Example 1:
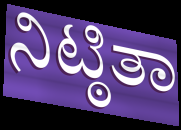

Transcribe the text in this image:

ನಿಟ್ಠಿತಾ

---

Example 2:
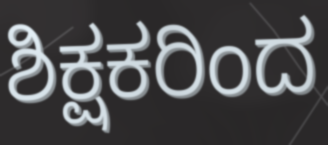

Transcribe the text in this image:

ಶಿಕ್ಷಕರಿಂದ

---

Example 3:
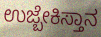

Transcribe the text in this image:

ಉಜ್ಬೇಕಿಸ್ತಾನ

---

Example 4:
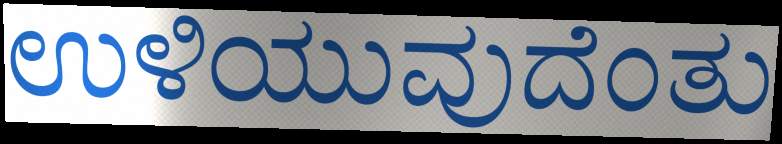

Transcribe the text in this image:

ಉಳಿಯುವುದೆಂತು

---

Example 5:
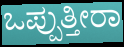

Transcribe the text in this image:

ಒಪ್ಪುತ್ತೀರಾ